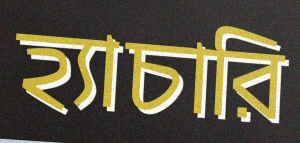
হ্যাচারি